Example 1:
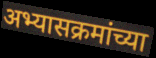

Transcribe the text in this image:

अभ्यासक्रमांच्या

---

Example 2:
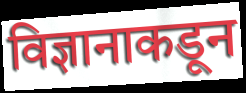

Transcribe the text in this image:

विज्ञानाकडून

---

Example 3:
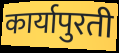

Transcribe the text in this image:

कार्यापुरती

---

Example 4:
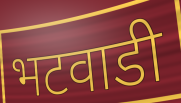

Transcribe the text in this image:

भटवाडी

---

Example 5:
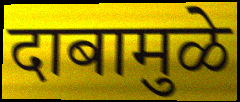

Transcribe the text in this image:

दाबामुळे